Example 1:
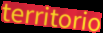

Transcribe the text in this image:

territorio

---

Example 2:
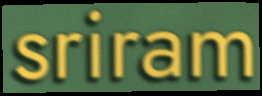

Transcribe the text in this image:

sriram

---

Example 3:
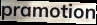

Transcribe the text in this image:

pramotion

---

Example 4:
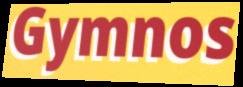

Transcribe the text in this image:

Gymnos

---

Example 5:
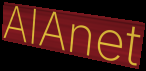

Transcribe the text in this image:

AIAnet